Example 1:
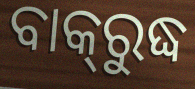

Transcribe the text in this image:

ବାକ୍‌ରୁଦ୍ଧ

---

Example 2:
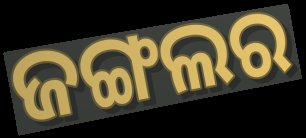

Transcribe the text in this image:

ଜଙ୍ଗଲର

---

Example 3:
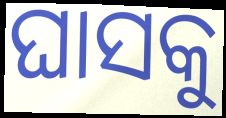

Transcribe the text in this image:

ଘାସକୁ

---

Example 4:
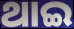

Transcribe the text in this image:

ଥାଇ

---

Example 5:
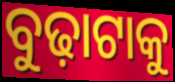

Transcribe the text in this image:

ବୁଢ଼ାଟାକୁ